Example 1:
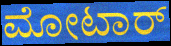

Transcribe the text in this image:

ಮೋಟಾರ್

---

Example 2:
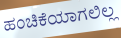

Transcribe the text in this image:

ಹಂಚಿಕೆಯಾಗಲಿಲ್ಲ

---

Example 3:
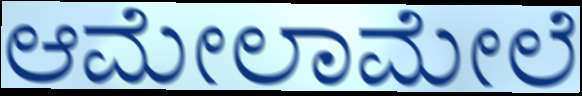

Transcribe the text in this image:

ಆಮೇಲಾಮೇಲೆ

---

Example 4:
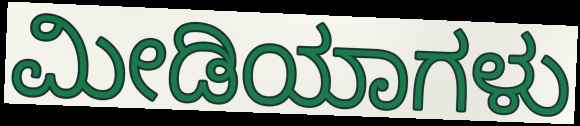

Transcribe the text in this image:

ಮೀಡಿಯಾಗಳು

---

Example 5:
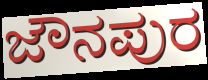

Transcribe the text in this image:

ಜೌನಪುರ